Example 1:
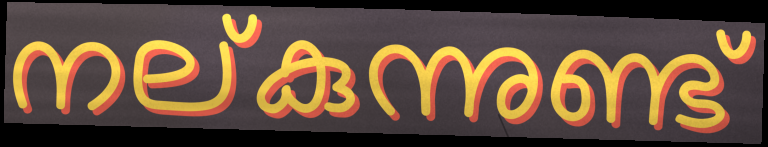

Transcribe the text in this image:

നല്കുന്നുണ്ട്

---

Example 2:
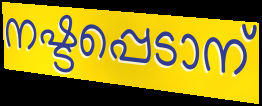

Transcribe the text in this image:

നഷ്ടപ്പെടാന്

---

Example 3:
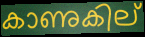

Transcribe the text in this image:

കാണുകില്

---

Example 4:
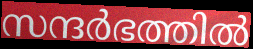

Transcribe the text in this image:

സന്ദർഭത്തിൽ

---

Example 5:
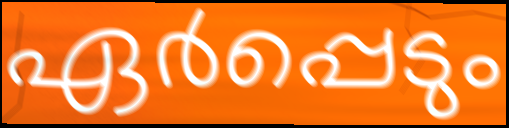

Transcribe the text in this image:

ഏർപ്പെടും